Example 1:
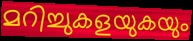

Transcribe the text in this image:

മറിച്ചുകളയുകയും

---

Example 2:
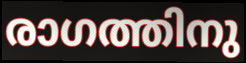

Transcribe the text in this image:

രാഗത്തിനു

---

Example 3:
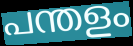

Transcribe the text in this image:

പന്തളം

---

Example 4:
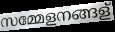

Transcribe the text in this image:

സമ്മേളനങ്ങള്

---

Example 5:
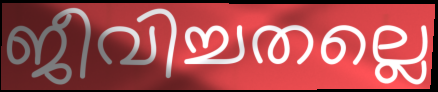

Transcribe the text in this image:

ജീവിച്ചതല്ലെ